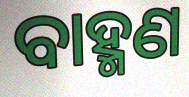
ବାହ୍ମଣ